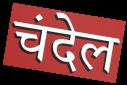
चंदेल